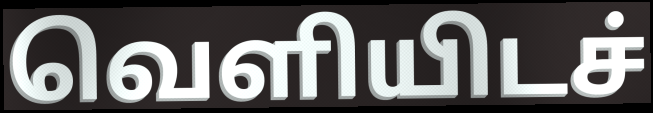
வெளியிடச்